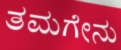
ತಮಗೇನು